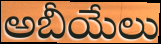
అబీయేలు